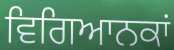
ਵਿਗਿਆਨਕਾਂ